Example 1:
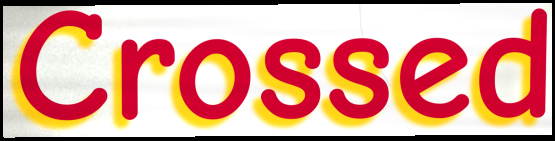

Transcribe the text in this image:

Crossed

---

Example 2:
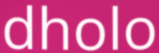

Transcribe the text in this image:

dholo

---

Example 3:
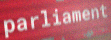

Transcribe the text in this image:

parliament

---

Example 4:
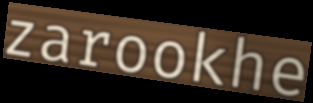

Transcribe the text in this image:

zarookhe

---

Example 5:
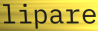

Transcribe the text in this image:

lipare